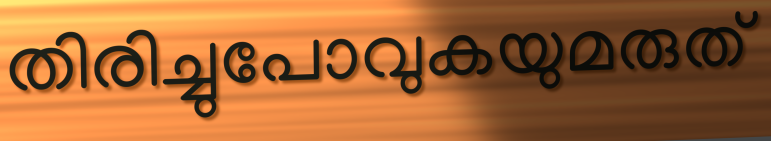
തിരിച്ചുപോവുകയുമരുത്